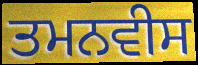
ਤਮਨਵੀਸ